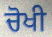
ਚੋਖੀ